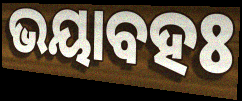
ଭୟାବହଃ